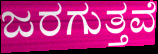
ಜರಗುತ್ತವೆ